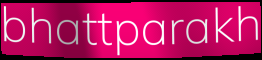
bhattparakh